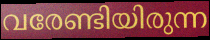
വരേണ്ടിയിരുന്ന